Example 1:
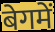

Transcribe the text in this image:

बेगमें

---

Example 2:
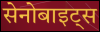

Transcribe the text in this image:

सेनोबाइट्स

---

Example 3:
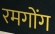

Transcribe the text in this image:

रमगोंग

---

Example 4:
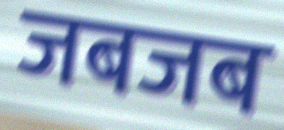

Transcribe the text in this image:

जबजब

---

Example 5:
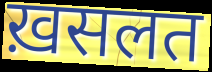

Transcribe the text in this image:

ख़सलत